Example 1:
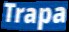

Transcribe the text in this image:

Trapa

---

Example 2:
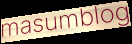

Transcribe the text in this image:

masumblog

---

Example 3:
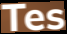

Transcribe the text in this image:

Tes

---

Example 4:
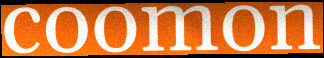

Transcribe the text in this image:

coomon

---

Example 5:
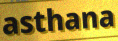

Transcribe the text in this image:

asthana